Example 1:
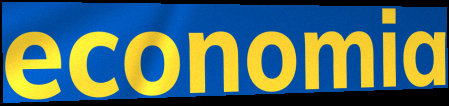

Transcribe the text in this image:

economia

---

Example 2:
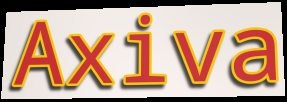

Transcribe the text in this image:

Axiva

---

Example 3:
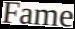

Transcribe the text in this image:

Fame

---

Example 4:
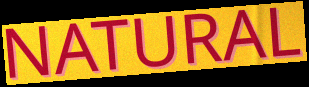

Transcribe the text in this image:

NATURAL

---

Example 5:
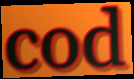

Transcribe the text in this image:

cod